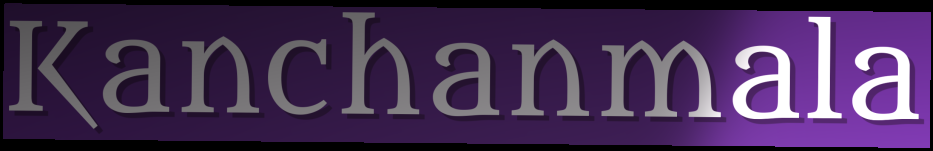
Kanchanmala